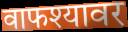
वाफश्यावर